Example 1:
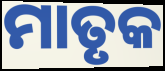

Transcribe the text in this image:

ମାତୃକ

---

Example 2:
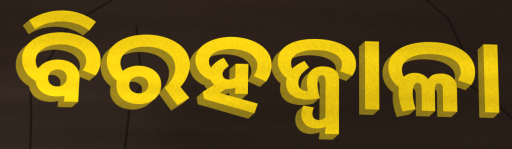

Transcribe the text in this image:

ବିରହଜ୍ୱାଳା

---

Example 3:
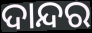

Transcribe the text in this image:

ଦାନ୍ଦର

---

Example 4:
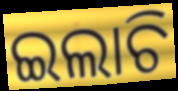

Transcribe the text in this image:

ଇଲାଚି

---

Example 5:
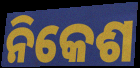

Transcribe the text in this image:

ନିକେଶ